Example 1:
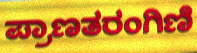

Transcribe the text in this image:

ಪ್ರಾಣತರಂಗಿಣಿ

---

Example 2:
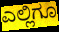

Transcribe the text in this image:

ಎಲ್ಲಿಗೂ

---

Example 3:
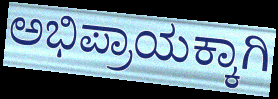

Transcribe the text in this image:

ಅಭಿಪ್ರಾಯಕ್ಕಾಗಿ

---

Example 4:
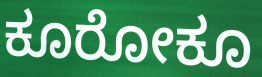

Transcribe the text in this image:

ಕೂರೋಕೂ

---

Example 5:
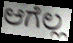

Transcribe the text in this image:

ಆಗೆಲ್ಲ